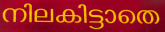
നിലകിട്ടാതെ